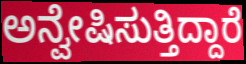
ಅನ್ವೇಷಿಸುತ್ತಿದ್ದಾರೆ